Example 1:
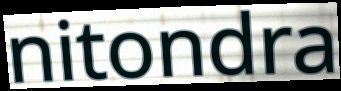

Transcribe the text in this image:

nitondra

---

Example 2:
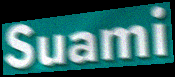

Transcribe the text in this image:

Suami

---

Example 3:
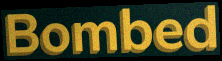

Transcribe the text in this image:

Bombed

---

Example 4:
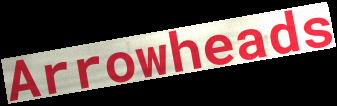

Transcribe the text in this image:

Arrowheads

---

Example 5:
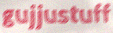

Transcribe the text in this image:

gujjustuff